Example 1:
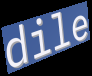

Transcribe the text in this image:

dile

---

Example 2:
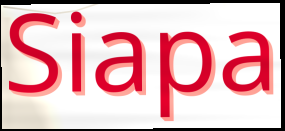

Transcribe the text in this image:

Siapa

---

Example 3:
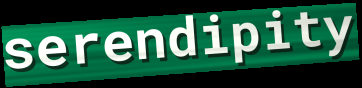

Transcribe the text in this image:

serendipity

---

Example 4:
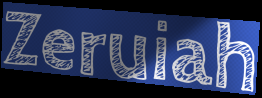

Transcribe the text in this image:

Zeruiah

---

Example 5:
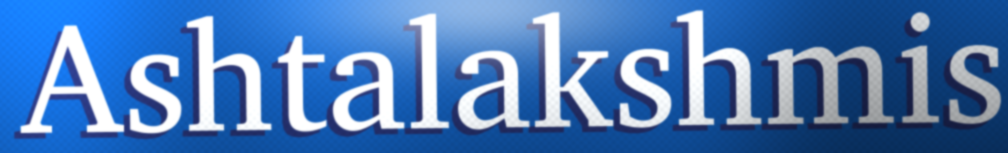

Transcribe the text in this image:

Ashtalakshmis